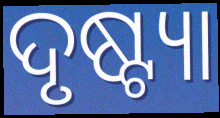
ଦୃଷ୍ଟ୍ୟା